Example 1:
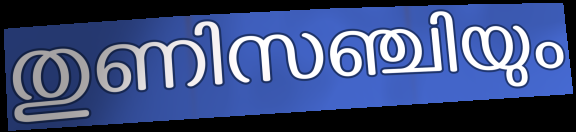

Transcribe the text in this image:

തുണിസഞ്ചിയും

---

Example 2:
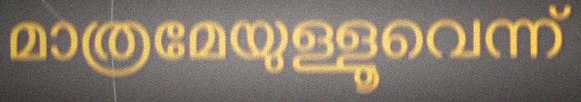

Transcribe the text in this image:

മാത്രമേയുള്ളൂവെന്ന്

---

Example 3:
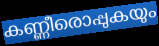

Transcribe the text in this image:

കണ്ണീരൊപ്പുകയും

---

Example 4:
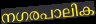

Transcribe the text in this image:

നഗരപാലിക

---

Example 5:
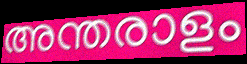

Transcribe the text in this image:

അന്തരാളം